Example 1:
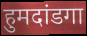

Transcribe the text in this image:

हुमदांडगा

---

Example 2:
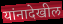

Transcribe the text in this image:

यांनादेखील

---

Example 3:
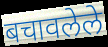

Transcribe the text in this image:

बचावलेले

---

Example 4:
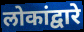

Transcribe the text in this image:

लोकांद्वारे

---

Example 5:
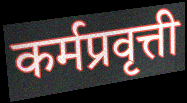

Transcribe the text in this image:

कर्मप्रवृत्ती